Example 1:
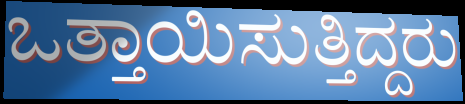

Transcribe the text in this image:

ಒತ್ತಾಯಿಸುತ್ತಿದ್ದರು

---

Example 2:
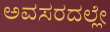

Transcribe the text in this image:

ಅವಸರದಲ್ಲೇ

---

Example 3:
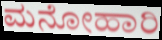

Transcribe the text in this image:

ಮನೋಹಾರಿ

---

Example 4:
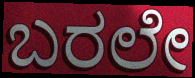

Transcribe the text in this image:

ಬರಲೇ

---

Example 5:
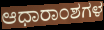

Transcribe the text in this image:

ಆಧಾರಾಂಶಗಳ